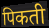
पिकती